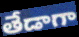
తేడాగా